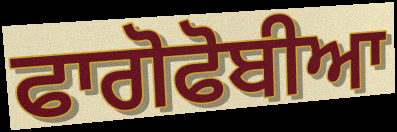
ਫਾਗੋਫੋਬੀਆ